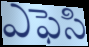
ఎఫెసి